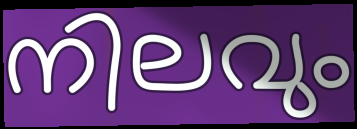
നിലവും